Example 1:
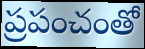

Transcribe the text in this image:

ప్రపంచంతో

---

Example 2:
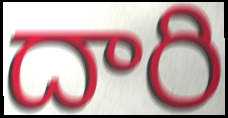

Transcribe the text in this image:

దారి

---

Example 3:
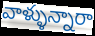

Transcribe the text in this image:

వాళ్ళున్నారా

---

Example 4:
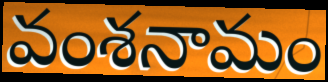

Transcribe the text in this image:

వంశనామం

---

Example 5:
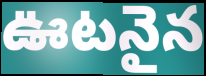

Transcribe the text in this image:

ఊటనైన